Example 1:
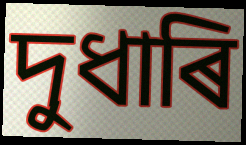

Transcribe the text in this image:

দুধাৰি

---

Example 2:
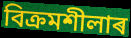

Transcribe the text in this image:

বিক্ৰমশীলাৰ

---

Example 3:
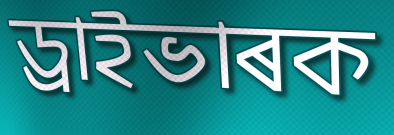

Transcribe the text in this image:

ড্ৰাইভাৰক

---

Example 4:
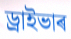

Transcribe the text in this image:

ড্ৰাইভাৰ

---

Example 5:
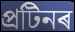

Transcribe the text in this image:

প্ৰটিনৰ